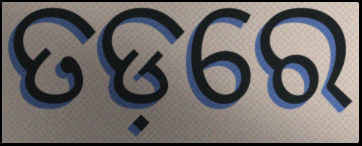
ତଡ଼ରେ